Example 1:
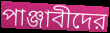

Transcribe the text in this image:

পাঞ্জাবীদের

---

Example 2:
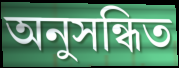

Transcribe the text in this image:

অনুসন্ধিত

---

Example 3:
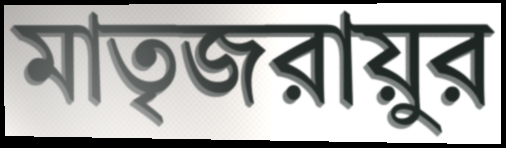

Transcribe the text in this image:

মাতৃজরায়ুর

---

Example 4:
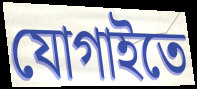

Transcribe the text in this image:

যোগাইতে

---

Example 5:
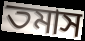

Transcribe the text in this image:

তমাস